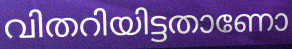
വിതറിയിട്ടതാണോ